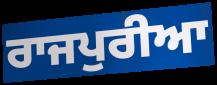
ਰਾਜਪੁਰੀਆ